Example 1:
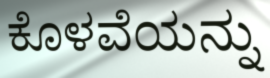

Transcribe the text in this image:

ಕೊಳವೆಯನ್ನು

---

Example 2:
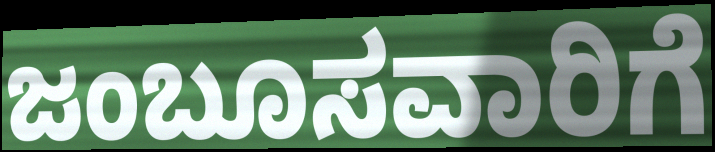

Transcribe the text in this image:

ಜಂಬೂಸವಾರಿಗೆ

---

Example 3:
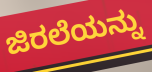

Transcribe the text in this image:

ಜಿರಲೆಯನ್ನು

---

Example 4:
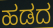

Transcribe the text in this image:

ಹಡದ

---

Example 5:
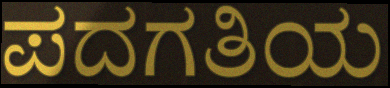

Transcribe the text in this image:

ಪದಗತಿಯ